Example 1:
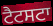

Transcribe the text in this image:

ਟੈਟਸਟਾ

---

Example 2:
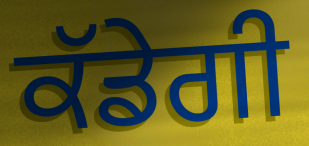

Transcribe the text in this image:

ਕੱਡੇਗੀ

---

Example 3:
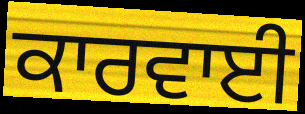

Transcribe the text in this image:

ਕਾਰਵਾਈ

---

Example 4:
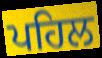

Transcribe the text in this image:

ਪਹਿਲ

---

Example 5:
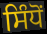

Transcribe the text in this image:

ਸਿੰਧੋਂ